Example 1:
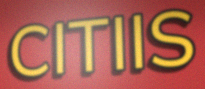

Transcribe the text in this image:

CITIIS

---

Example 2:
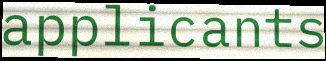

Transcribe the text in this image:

applicants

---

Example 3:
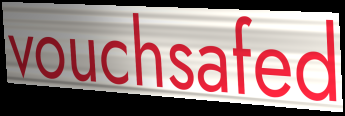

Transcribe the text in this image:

vouchsafed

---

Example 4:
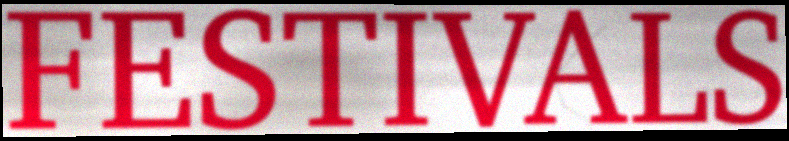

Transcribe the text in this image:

FESTIVALS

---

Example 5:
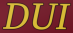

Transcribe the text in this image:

DUI